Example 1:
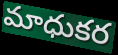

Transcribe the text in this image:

మాధుకర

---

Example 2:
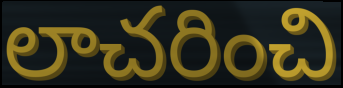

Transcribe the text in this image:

లాచరించి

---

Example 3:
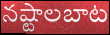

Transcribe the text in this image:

నష్టాలబాట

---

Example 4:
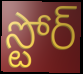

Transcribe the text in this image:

స్టోర్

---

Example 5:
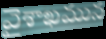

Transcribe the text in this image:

వైశాఖమున